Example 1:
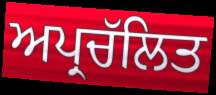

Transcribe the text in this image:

ਅਪ੍ਰਚੱਲਿਤ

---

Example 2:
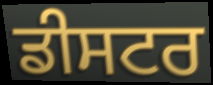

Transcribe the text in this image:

ਡੀਸਟਰ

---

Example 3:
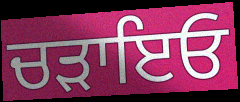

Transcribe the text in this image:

ਚੜਾਇਓ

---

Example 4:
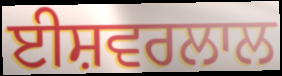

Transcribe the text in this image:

ਈਸ਼ਵਰਲਾਲ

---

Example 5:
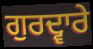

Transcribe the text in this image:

ਗੁਰਦ੍ਵਾਰੇ